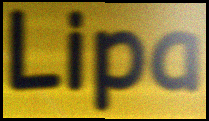
Lipa